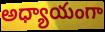
అధ్యాయంగా